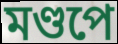
মণ্ডপে